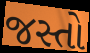
જસ્તો